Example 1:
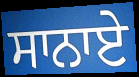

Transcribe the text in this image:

ਸਾਨਾਏ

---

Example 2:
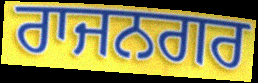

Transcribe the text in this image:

ਰਾਜਨਗਰ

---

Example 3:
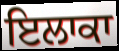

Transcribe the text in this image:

ਇਲਾਕਾ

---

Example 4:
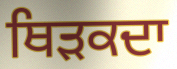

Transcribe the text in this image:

ਥਿੜਕਦਾ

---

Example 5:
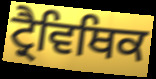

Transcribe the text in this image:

ਟ੍ਰੈਵਿਥਿਕ